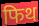
फिथ